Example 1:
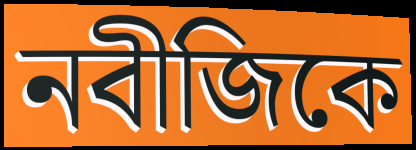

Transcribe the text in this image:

নবীজিকে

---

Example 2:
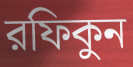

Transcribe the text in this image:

রফিকুন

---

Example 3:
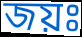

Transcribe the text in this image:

জয়ঃ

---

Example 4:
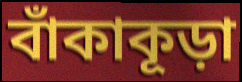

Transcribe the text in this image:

বাঁকাকূড়া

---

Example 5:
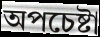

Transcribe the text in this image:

অপচেষ্টা